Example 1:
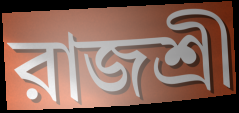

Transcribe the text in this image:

রাজশ্রী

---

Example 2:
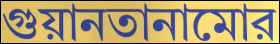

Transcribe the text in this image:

গুয়ানতানামোর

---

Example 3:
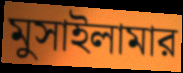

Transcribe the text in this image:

মুসাইলামার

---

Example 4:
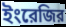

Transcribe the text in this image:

ইংরেজির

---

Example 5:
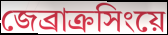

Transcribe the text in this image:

জেব্রাক্রসিংয়ে